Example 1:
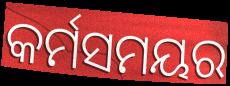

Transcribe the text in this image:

କର୍ମସମୟର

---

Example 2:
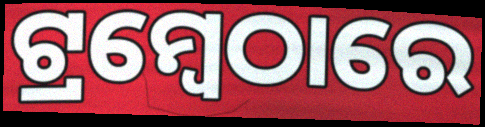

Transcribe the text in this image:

ଟ୍ରମ୍ବେଠାରେ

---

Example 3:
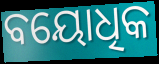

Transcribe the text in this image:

ବୟୋଧିକ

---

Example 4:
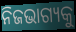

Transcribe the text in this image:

ନିଜଭାଗ୍ୟକୁ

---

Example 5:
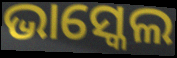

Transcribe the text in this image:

ଭାସ୍କେଲ